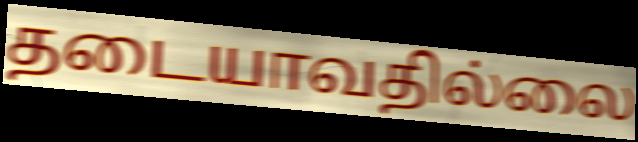
தடையாவதில்லை